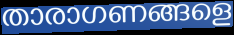
താരാഗണങ്ങളെ